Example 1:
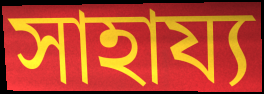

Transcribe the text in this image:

সাহায্য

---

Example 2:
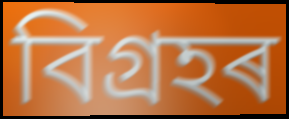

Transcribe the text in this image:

বিগ্ৰহৰ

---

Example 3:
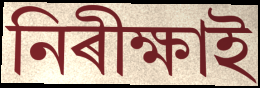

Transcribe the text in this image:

নিৰীক্ষাই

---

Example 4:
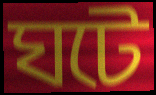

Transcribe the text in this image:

ঘটে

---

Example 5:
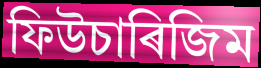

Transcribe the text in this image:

ফিউচাৰিজিম